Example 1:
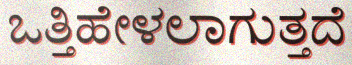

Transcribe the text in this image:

ಒತ್ತಿಹೇಳಲಾಗುತ್ತದೆ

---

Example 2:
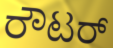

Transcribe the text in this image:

ರೌಟರ್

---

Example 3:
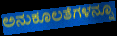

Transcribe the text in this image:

ಅನುಕೂಲತೆಗಳನ್ನೂ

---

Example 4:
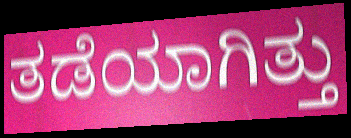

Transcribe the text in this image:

ತಡೆಯಾಗಿತ್ತು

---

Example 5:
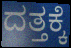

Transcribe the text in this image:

ದತ್ತಕ್ಕೆ